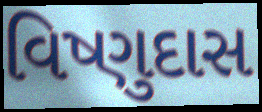
વિષ્ણુદાસ